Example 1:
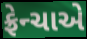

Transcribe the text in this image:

ફ્રેન્ચાએ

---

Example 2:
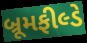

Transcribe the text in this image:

બ્રૂમફીલ્ડે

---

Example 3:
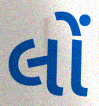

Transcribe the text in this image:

લોં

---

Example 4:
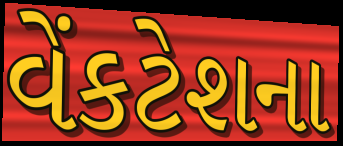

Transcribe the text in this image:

વેંકટેશના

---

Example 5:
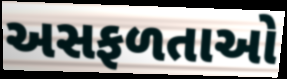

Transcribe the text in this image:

અસફળતાઓ